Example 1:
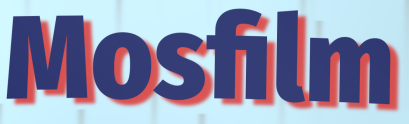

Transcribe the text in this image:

Mosfilm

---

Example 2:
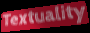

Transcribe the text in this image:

Textuality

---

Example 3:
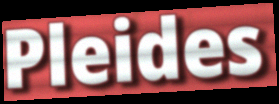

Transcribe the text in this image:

Pleides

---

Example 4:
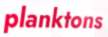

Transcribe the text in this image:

planktons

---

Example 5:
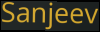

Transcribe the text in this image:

Sanjeev